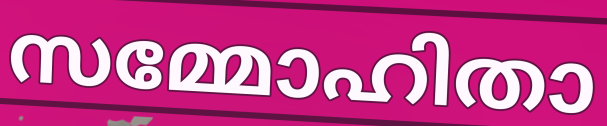
സമ്മോഹിതാ